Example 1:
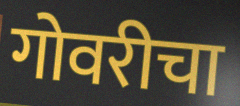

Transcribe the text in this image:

गोवरीचा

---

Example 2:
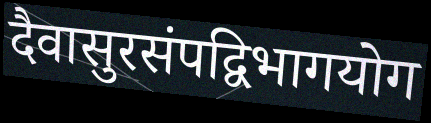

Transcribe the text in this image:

दैवासुरसंपद्विभागयोग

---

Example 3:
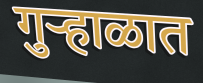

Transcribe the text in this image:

गुऱ्हाळात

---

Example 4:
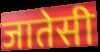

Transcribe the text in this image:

जातेसी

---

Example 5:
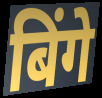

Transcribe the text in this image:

बिंगे